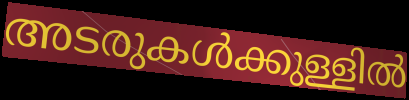
അടരുകൾക്കുള്ളിൽ